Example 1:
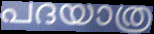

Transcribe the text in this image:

പദയാത്ര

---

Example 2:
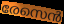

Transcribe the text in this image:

രേസെൻ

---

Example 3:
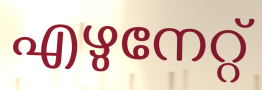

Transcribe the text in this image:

എഴുനേറ്റ്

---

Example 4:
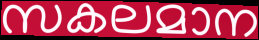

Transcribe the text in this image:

സകലമാന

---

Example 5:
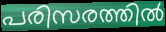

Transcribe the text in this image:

പരിസരത്തിൽ